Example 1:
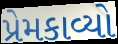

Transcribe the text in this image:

પ્રેમકાવ્યો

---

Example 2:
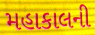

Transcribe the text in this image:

મહાકાલની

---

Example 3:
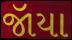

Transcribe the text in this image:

જૉયા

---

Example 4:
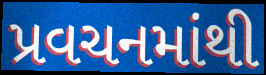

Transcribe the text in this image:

પ્રવચનમાંથી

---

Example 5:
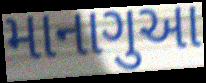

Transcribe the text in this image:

માનાગુઆ